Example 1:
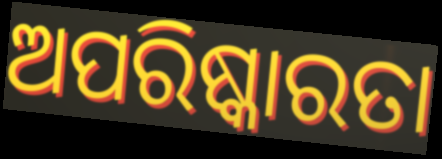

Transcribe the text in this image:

ଅପରିଷ୍କାରତା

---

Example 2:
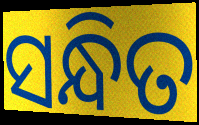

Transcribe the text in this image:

ସନ୍ଧିତ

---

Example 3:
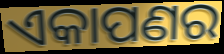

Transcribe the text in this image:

ଏକାପଣର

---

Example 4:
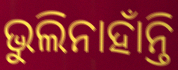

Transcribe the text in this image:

ଭୁଲିନାହାଁନ୍ତି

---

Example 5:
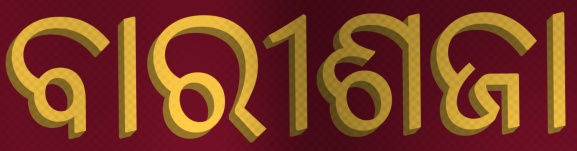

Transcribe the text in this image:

ବାରୀଶଜା